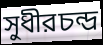
সুধীরচন্দ্র